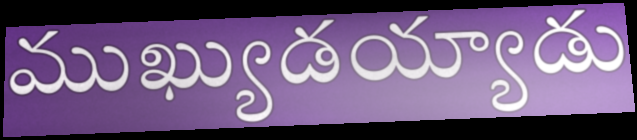
ముఖ్యుడయ్యాడు